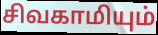
சிவகாமியும்